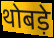
थोबड़े